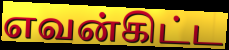
எவன்கிட்ட